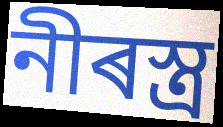
নীৰস্ত্ৰ